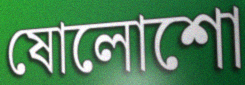
ষোলোশো